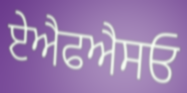
ਏਐਫਐਸਓ